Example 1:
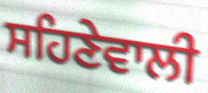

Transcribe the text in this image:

ਸਹਿਣੇਵਾਲੀ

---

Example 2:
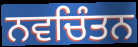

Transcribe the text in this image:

ਨਵਚਿੰਤਨ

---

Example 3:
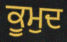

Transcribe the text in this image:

ਕੂਮੁਦ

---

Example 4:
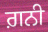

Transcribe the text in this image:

ਗ਼ਨੀ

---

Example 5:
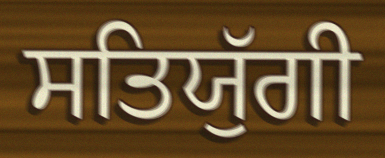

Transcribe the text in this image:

ਸਤਿਯੁੱਗੀ